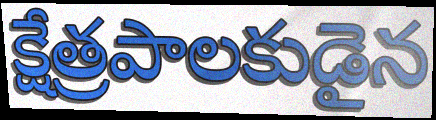
క్షేత్రపాలకుడైన